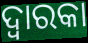
ଦ୍ୱାରକା